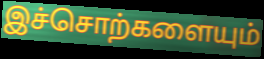
இச்சொற்களையும்